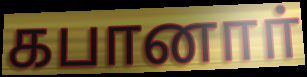
கபானார்